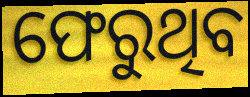
ଫେରୁଥିବ